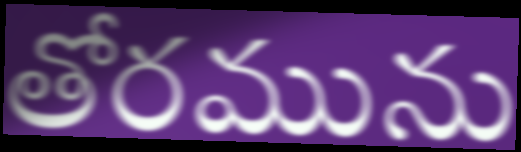
తోరమును